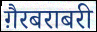
ग़ैरबराबरी